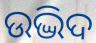
ଉଦ୍ଭିଦ